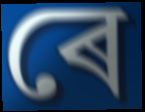
ৰে